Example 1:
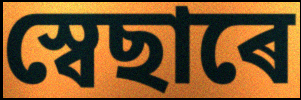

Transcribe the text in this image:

স্বেছাৰে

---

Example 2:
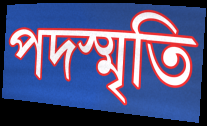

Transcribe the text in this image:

পদস্মৃতি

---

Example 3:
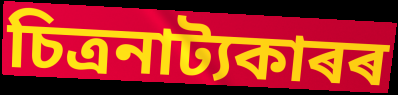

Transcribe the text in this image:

চিত্ৰনাট্যকাৰৰ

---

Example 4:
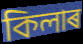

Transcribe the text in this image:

কিলাৰ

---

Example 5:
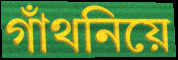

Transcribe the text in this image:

গাঁথনিয়ে